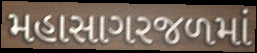
મહાસાગરજળમાં